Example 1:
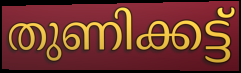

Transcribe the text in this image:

തുണിക്കട്ട്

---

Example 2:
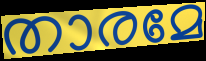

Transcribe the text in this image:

താരമേ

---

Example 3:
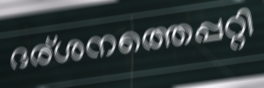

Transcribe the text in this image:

ദര്ശനത്തെപ്പറ്റി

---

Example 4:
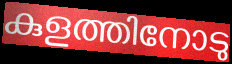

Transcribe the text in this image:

കുളത്തിനോടു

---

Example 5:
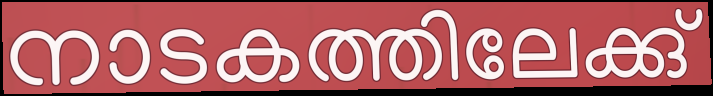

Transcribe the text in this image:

നാടകത്തിലേക്കു്